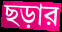
ছড়ার